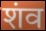
शंव